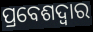
ପ୍ରବେଶଦ୍ଵାର